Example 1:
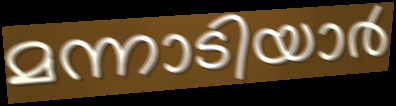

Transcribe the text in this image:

മന്നാടിയാർ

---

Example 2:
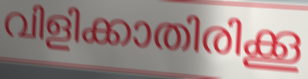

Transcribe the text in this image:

വിളിക്കാതിരിക്കൂ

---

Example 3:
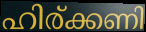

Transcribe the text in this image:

ഹിര്ക്കണി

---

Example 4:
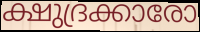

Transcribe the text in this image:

ക്ഷുദ്രക്കാരോ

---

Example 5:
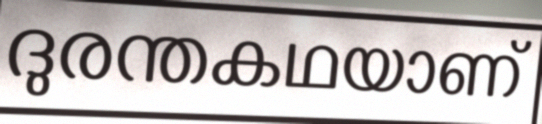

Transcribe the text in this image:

ദുരന്തകഥയാണ്